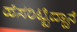
ಹೆಸರಿಟ್ಟಿದ್ದಾನೆ